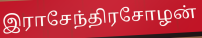
இராசேந்திரசோழன்